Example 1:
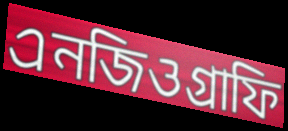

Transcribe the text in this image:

এনজিওগ্রাফি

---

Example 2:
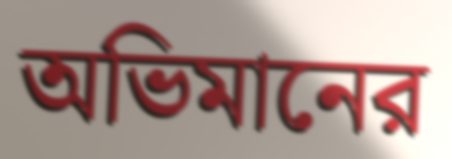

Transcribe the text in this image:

অভিমানের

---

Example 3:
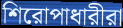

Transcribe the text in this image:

শিরোপাধারীরা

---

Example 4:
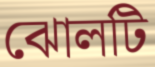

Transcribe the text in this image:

ঝোলটি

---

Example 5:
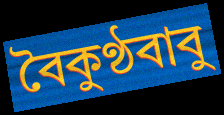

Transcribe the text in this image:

বৈকুণ্ঠবাবু